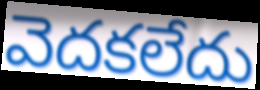
వెదకలేదు